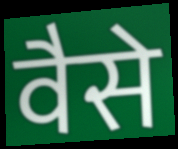
वैसे